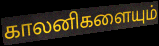
காலனிகளையும்